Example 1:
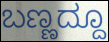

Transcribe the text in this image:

ಬಣ್ಣದ್ದೂ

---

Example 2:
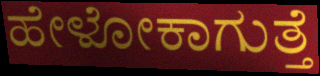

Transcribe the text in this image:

ಹೇಳೋಕಾಗುತ್ತೆ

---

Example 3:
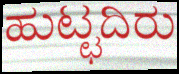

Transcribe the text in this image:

ಹುಟ್ಟದಿರು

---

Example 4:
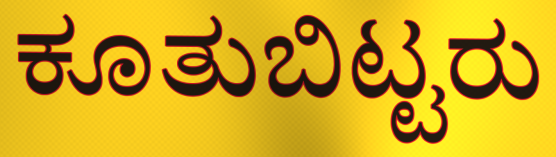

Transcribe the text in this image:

ಕೂತುಬಿಟ್ಟರು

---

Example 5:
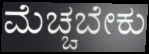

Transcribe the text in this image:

ಮೆಚ್ಚಬೇಕು